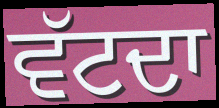
ਵੱਟਦਾ